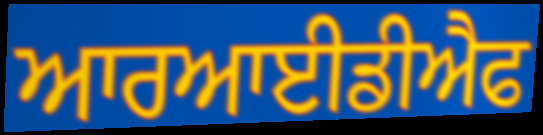
ਆਰਆਈਡੀਐਫ